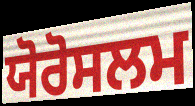
ਯੋਰੋਸਲਮ